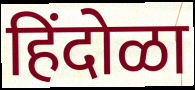
हिंदोळा